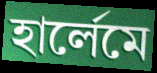
হার্লেমে